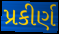
પ્રકીર્ણ